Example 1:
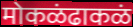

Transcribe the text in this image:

मोकळंढाकळं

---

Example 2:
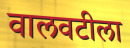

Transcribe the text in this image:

वालवटीला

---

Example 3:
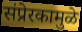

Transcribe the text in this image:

संप्रेरकामुळे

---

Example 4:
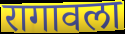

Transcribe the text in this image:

रागावला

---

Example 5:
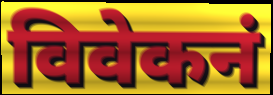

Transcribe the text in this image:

विवेकनं